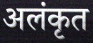
अलंकृत